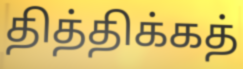
தித்திக்கத்